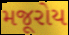
મજૂરોય